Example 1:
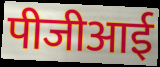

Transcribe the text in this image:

पीजीआई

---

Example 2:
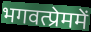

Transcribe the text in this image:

भगवत्प्रेममें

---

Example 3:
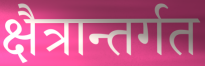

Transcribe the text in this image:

क्षैत्रान्तर्गत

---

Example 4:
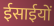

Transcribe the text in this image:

ईसाईयों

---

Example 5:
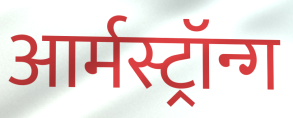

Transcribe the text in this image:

आर्मस्ट्रॉन्ग